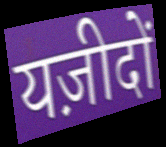
यज़ीदों